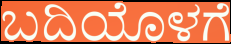
ಬದಿಯೊಳಗೆ